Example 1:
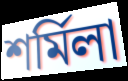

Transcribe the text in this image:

শৰ্মিলা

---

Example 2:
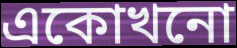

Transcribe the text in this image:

একোখনো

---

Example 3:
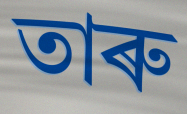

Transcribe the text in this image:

তাৰু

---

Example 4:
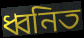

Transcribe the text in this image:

ধ্বনিত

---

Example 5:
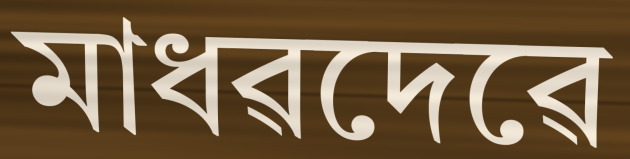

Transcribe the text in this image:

মাধৱদেৱে